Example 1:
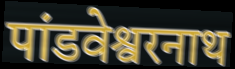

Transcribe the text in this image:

पांडवेश्वरनाथ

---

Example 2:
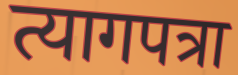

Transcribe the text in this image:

त्यागपत्रा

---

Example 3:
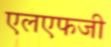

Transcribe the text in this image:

एलएफजी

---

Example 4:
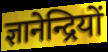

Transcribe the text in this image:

ज्ञानेन्द्रियों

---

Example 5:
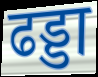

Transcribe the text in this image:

ढड्डा